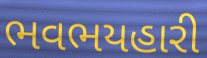
ભવભયહારી